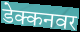
डेक्कनवर